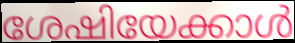
ശേഷിയേക്കാൾ